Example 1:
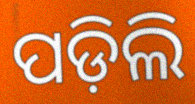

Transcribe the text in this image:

ପଡ଼ିଲି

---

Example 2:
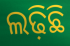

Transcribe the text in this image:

ଲଢ଼ିଛି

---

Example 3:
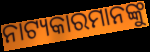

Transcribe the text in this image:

ନାଟ୍ଯକାରମାନଙ୍କୁ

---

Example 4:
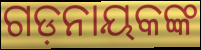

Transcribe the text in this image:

ଗଡ଼ନାୟକଙ୍କ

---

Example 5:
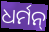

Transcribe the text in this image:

ଧର୍ମନ୍